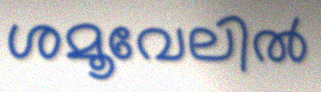
ശമൂവേലിൽ